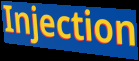
Injection